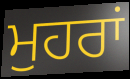
ਮੁਹਰਾਂ